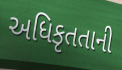
અધિકૃતતાની